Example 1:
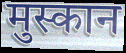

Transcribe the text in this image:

मुस्‍कान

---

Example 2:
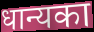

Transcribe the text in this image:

धान्यका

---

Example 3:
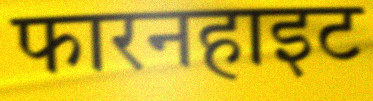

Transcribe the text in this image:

फारनहाइट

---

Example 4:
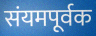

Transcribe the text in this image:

संयमपूर्वक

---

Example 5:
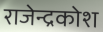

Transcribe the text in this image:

राजेन्द्रकोश